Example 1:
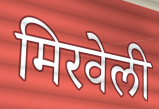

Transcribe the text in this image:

मिरवेली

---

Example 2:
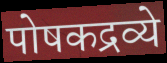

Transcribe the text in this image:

पोषकद्रव्ये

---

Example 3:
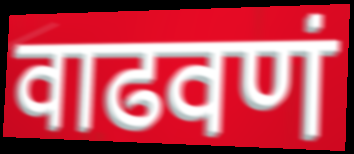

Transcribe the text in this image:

वाढवणं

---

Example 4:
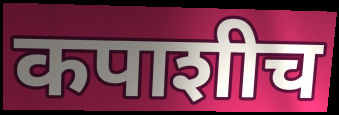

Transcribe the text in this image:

कपाशीच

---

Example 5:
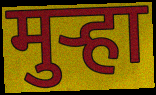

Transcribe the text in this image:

मुऱ्हा